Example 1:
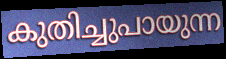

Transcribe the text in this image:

കുതിച്ചുപായുന്ന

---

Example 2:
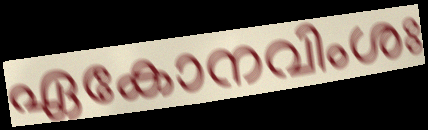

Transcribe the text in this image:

ഏകോനവിംശഃ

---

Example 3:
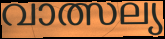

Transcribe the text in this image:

വാത്സല്യ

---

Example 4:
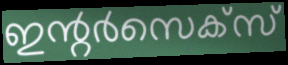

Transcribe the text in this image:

ഇന്റർസെക്സ്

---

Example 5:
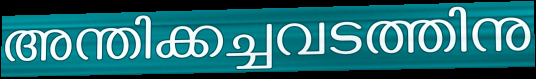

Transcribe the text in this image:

അന്തിക്കച്ചവടത്തിനു